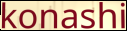
konashi